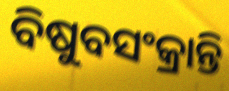
ବିଷୁବସଂକ୍ରାନ୍ତି